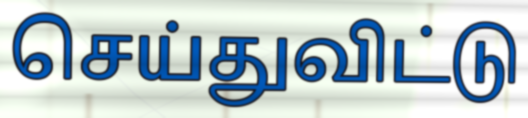
செய்துவிட்டு